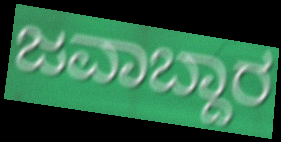
ಜವಾಬ್ದಾರ